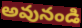
అవునండి